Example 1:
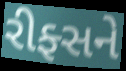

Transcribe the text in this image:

રીફ્સને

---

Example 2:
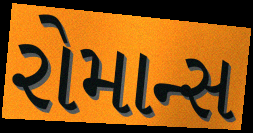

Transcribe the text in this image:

રોમાન્સ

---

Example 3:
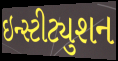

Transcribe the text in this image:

ઇન્સ્ટીટ્યુશન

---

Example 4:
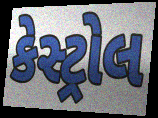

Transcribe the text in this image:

કેસ્ટ્રોલ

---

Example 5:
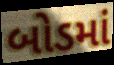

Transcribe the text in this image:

બોડમાં